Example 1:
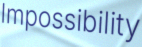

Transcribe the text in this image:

Impossibility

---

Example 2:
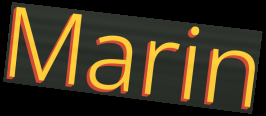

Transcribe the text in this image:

Marin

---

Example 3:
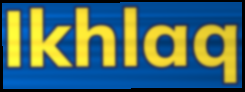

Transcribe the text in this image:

Ikhlaq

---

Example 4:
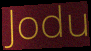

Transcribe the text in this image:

Jodu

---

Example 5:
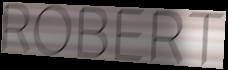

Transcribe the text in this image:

ROBERT